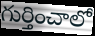
గుర్తించాలో